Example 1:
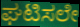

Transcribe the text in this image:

ಘಟಿಸಲೇ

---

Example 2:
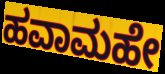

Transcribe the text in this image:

ಹವಾಮಹೇ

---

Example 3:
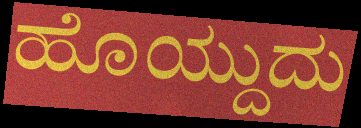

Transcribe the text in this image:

ಹೊಯ್ದುದು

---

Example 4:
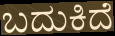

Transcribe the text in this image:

ಬದುಕಿದೆ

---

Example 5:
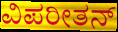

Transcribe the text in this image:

ವಿಪರೀತನ್